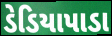
ડેડિયાપાડા